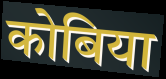
कोबिया